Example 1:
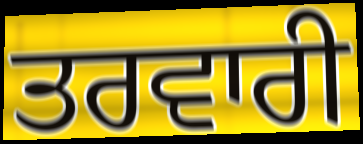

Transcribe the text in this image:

ਤਰਵਾਰੀ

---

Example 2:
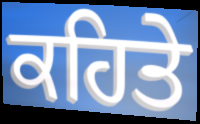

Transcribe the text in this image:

ਕਹਿਤੇ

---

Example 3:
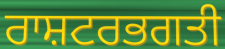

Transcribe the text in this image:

ਰਾਸ਼ਟਰਭਗਤੀ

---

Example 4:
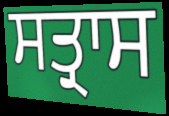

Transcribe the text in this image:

ਸਤ੍ਰਾਸ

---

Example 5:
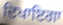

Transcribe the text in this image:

ਦਿਖਾਇਗਾ